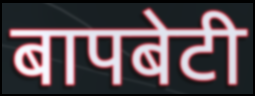
बापबेटी